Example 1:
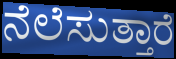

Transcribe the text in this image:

ನೆಲೆಸುತ್ತಾರೆ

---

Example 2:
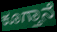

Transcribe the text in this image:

ಕೂಗ್ತಾನೆ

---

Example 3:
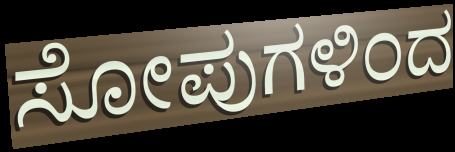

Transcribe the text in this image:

ಸೋಪುಗಳಿಂದ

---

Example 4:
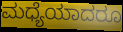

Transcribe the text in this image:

ಮಧ್ಯೆಯಾದರೂ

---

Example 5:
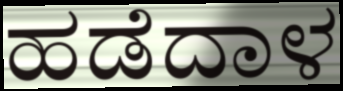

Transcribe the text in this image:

ಹಡೆದಾಳ